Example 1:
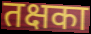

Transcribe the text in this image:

तक्षका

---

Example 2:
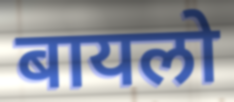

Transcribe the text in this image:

बायलो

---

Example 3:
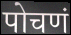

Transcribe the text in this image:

पोचणं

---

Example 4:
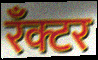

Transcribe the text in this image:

रँक्टर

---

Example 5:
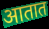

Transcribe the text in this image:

आतात